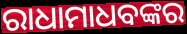
ରାଧାମାଧବଙ୍କର